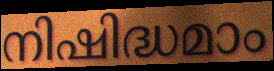
നിഷിദ്ധമാം